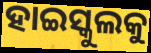
ହାଇସ୍କୁଲକୁ